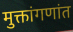
मुक्तांगणांत